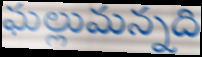
ఘల్లుమన్నది